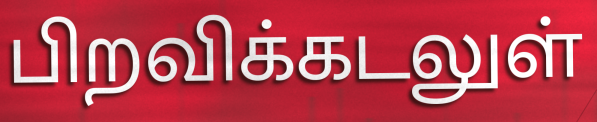
பிறவிக்கடலுள்